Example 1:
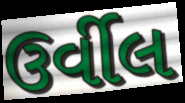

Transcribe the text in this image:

ઉર્વીલ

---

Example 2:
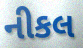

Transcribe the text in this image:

નીકલ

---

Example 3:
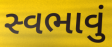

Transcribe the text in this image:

સ્વભાવું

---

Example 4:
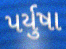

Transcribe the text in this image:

પર્યુષા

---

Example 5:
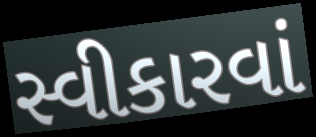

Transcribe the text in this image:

સ્વીકારવાં